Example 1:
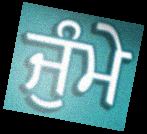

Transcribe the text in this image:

ਜੁੰਮੇ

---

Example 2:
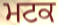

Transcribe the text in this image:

ਮਟਕ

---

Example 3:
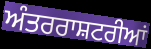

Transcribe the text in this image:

ਅੰਤਰਰਾਸ਼ਟਰੀਆਂ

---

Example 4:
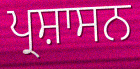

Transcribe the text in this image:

ਪ੍ਰਸ਼ਾਸਨ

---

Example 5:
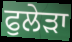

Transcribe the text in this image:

ਫੁਲੇੜਾ